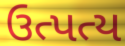
ઉત્પત્ય